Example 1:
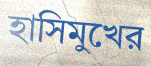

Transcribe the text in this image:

হাসিমুখের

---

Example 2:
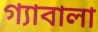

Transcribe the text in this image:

গ্যাবালা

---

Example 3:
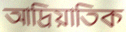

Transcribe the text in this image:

আদ্রিয়াতিক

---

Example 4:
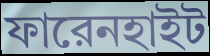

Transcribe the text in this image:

ফারেনহাইট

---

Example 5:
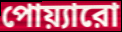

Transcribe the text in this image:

পোয়্যারো